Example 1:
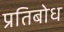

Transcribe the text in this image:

प्रतिबोध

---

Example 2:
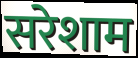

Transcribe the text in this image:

सरेशाम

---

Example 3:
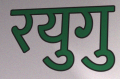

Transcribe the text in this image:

रयुगु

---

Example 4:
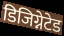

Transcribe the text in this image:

डिजिग्नेटेड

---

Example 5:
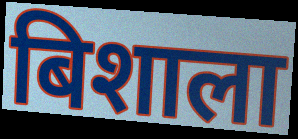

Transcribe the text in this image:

बिशाला